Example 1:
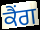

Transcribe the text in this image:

ਕੈਂਗ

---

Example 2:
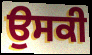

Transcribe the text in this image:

ਉਸਕੀ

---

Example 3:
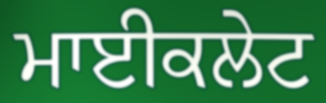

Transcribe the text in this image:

ਮਾਈਕਲੇਟ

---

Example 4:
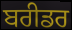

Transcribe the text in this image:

ਬਰੀਡਰ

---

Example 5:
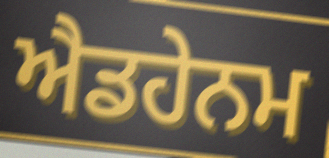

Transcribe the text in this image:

ਐਡਹੇਨਮ